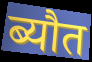
ब्यौत